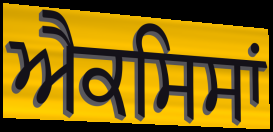
ਐਕਸਿਸਾਂ